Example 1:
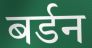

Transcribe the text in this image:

बर्डन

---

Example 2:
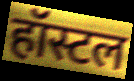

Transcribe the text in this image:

हॉस्टल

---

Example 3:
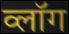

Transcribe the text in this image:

व्लॉग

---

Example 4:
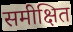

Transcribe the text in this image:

समीक्षित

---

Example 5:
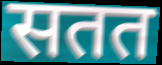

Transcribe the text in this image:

सतत